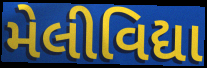
મેલીવિદ્યા